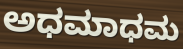
ಅಧಮಾಧಮ